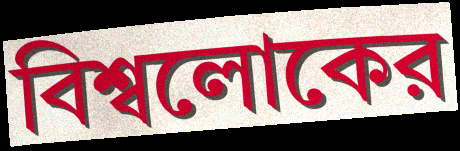
বিশ্বলোকের